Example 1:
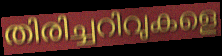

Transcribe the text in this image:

തിരിച്ചറിവുകളെ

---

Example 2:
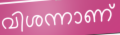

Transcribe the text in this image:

വിശന്നാണ്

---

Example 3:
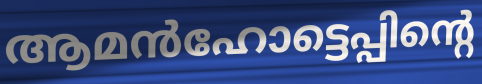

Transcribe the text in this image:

ആമൻഹോട്ടെപ്പിന്റെ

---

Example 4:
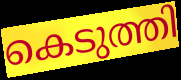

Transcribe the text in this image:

കെടുത്തി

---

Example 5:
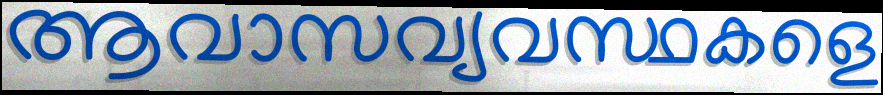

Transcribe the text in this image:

ആവാസവ്യവസ്ഥകളെ